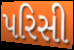
પરિસી